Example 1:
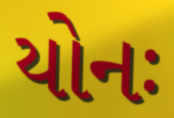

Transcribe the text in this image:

યોનઃ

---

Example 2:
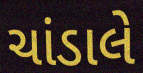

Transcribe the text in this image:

ચાંડાલે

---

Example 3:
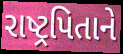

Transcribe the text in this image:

રાષ્ટ્રપિતાને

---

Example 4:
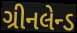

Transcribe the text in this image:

ગ્રીનલેન્ડ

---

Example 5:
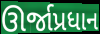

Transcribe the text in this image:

ઊર્જાપ્રધાન